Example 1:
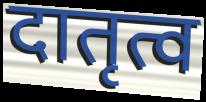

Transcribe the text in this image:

दातृत्व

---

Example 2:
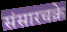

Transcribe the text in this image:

संसारचक्रे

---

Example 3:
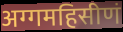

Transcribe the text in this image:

अग्गमहिसीणं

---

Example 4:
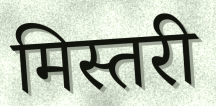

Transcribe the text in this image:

मिस्तरी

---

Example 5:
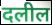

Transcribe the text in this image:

दलील